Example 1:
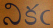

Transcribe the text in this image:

నికఁ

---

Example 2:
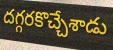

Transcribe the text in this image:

దగ్గరకొచ్చేశాడు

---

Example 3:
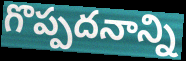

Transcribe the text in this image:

గొప్పదనాన్ని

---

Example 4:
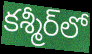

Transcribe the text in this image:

కశ్మీర్‌లో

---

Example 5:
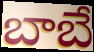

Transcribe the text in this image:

బాబే